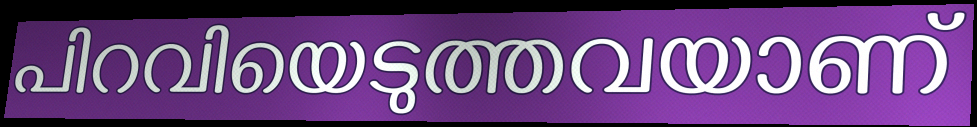
പിറവിയെടുത്തവയാണ്